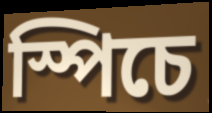
স্পিচে